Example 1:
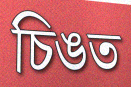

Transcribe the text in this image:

চিঙত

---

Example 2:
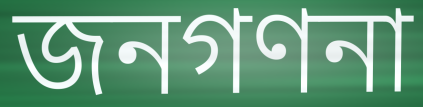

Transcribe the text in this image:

জনগণনা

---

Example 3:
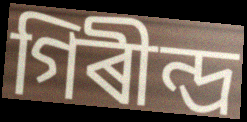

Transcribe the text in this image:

গিৰীন্দ্ৰ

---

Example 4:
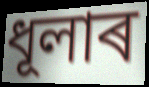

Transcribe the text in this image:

ধূলাৰ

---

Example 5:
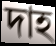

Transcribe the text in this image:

দাহ